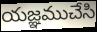
యజ్ఞముచేసి